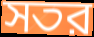
সতর